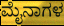
ಮೈನಾಗಳ